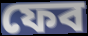
ফেব